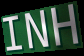
INH